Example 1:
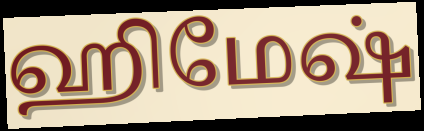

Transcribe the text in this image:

ஹிமேஷ்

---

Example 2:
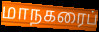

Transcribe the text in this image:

மாநகரைப்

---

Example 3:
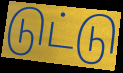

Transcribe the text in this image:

டுட்டு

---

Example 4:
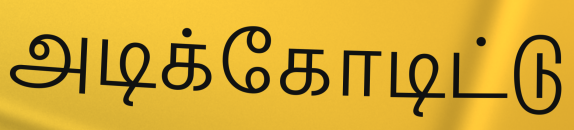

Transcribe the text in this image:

அடிக்கோடிட்டு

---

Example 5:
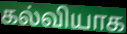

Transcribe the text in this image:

கல்வியாக